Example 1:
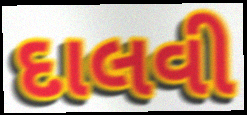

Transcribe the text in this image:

દાલવી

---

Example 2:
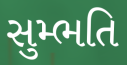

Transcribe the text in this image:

સુમ્ભતિ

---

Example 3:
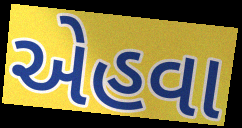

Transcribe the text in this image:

એહવા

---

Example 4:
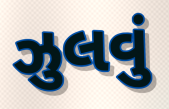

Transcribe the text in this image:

ઝુલવું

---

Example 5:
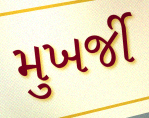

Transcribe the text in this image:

મુખર્જી